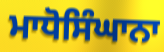
ਮਾਧੋਸਿੰਘਾਨਾ